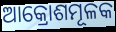
ଆକ୍ରୋଶମୂଳକ